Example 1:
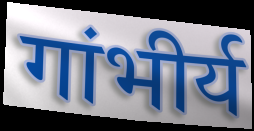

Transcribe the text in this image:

गांभीर्य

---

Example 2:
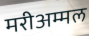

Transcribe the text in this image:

मरीअम्मल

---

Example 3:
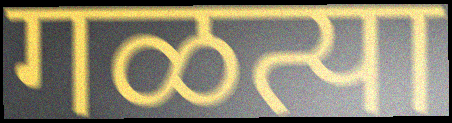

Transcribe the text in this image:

गळत्या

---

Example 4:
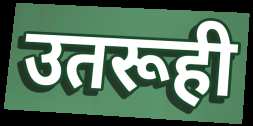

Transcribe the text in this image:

उतरूही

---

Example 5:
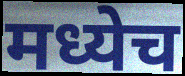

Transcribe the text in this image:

मध्येच